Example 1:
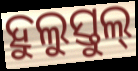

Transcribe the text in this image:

ହୁଲୁସ୍ତୁଲ୍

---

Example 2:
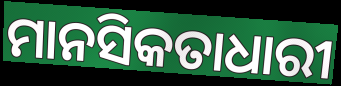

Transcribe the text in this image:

ମାନସିକତାଧାରୀ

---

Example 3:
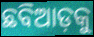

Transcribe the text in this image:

ଛବିଆଡ଼କୁ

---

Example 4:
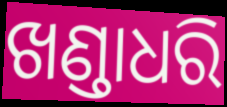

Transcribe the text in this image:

ଖଣ୍ଡାଧରି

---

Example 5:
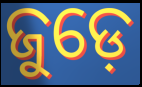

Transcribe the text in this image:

ଜୁଡ଼େ